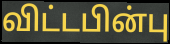
விட்டபின்பு